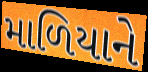
માળિયાને